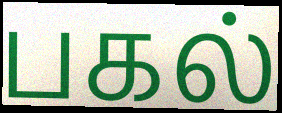
பகல்